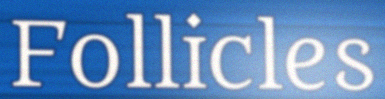
Follicles